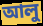
আলু